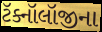
ટૅક્નૉલૉજીના